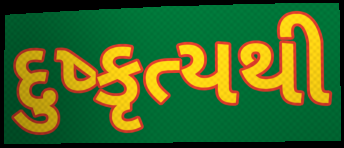
દુષ્કૃત્યથી